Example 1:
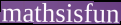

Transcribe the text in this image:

mathsisfun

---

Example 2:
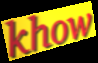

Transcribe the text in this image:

khow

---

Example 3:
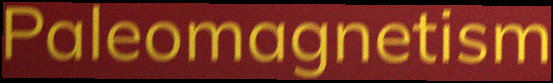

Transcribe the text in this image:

Paleomagnetism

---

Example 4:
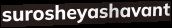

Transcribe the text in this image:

surosheyashavant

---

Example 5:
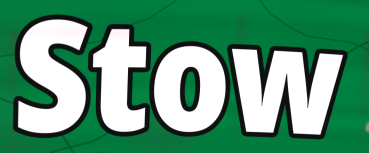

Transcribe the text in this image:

Stow